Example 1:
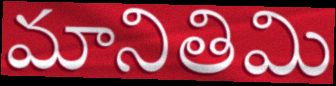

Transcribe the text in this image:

మానితిమి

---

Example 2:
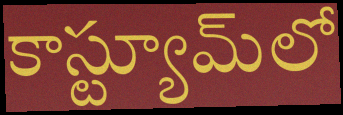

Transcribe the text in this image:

కాస్ట్యూమ్‌లో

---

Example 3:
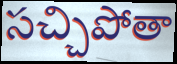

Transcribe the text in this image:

సచ్చిపోతా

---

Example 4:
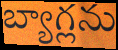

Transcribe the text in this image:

బ్యాగ్లను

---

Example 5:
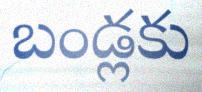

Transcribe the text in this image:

బండ్లకు